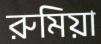
রুমিয়া